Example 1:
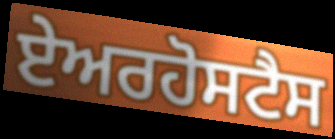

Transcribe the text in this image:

ਏਅਰਹੋਸਟੈਸ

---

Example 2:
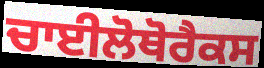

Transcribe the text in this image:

ਚਾਈਲੋਥੋਰੈਕਸ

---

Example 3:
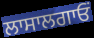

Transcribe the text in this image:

ਲਾਸਾਲਗਾਓਂ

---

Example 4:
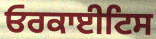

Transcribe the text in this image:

ਓਰਕਾਈਟਿਸ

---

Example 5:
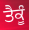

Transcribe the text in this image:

ਤੈਕੂੰ